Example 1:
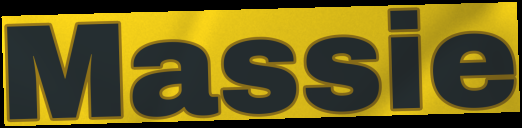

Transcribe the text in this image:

Massie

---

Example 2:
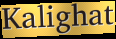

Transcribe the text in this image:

Kalighat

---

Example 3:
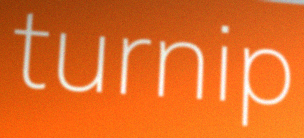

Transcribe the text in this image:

turnip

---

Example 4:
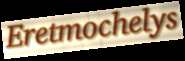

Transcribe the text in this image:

Eretmochelys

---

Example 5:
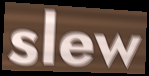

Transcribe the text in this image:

slew